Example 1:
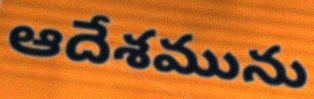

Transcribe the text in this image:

ఆదేశమును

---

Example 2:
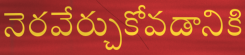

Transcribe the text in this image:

నెరవేర్చుకోవడానికి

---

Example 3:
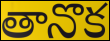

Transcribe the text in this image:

తానొక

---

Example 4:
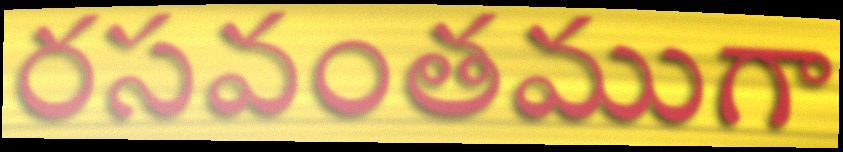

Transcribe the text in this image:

రసవంతముగా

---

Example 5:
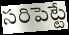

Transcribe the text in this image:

సరిపెట్టే